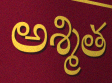
అశ్మిత